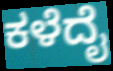
ಕಳೆದೈ